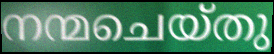
നന്മചെയ്തു